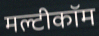
मल्टीकॉम